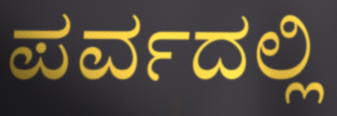
ಪರ್ವದಲ್ಲಿ